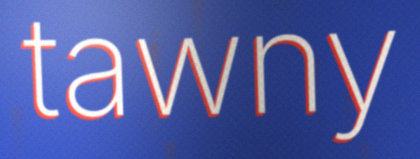
tawny